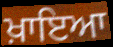
ਖ਼ਾਇਆ